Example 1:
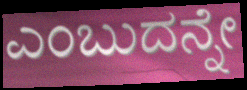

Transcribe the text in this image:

ಎಂಬುದನ್ನೇ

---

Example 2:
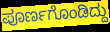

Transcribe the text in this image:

ಪೂರ್ಣಗೊಂಡಿದ್ದು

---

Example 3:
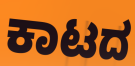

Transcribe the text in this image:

ಕಾಟದ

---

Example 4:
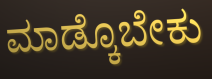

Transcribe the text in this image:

ಮಾಡ್ಕೊಬೇಕು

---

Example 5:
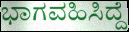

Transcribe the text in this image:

ಭಾಗವಹಿಸಿದ್ದೆ